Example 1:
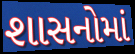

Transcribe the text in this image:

શાસનોમાં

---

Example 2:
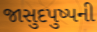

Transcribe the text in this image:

જાસુદપુષ્પની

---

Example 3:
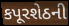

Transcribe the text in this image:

કપૂરશેઠની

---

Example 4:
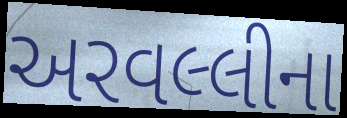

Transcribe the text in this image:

અરવલ્લીના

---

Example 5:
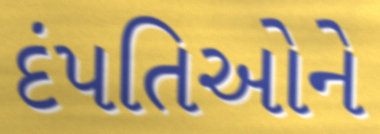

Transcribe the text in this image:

દંપતિઓને